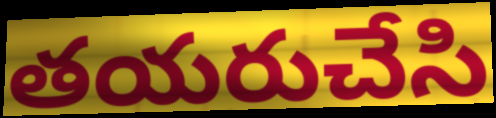
తయరుచేసి